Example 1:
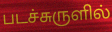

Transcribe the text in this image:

படச்சுருளில்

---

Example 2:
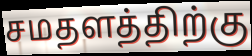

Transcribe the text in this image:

சமதளத்திற்கு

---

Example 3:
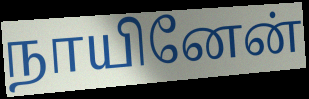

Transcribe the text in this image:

நாயினேன்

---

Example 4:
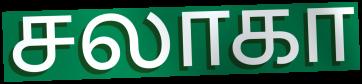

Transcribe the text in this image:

சலாகா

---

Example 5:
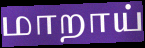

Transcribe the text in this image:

மாறாய்